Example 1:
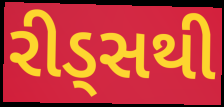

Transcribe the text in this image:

રીડ્સથી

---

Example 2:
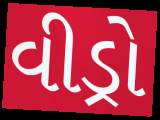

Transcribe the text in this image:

વીડ્રો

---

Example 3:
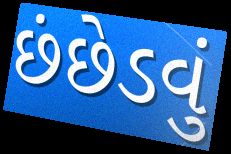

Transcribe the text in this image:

છંછેડવું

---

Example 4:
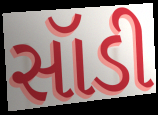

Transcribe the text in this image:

સૉડી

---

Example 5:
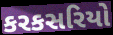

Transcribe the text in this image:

કરકસરિયો